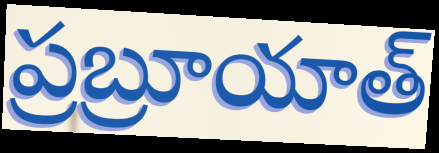
ప్రబ్రూయాత్